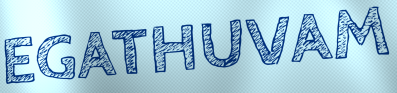
EGATHUVAM